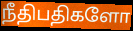
நீதிபதிகளோ